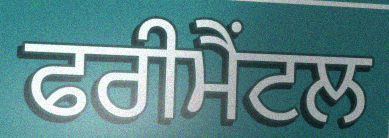
ਫਰੀਮੈਂਟਲ